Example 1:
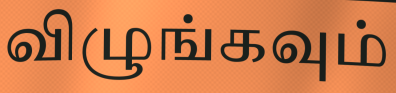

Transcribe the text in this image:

விழுங்கவும்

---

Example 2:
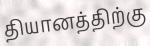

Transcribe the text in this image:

தியானத்திற்கு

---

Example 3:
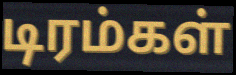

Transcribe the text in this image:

டிரம்கள்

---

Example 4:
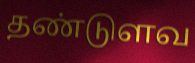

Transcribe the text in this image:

தண்டுளவ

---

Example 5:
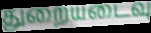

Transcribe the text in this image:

துறையடைவு